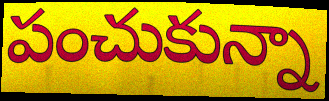
పంచుకున్నా